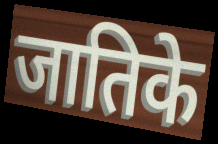
जातिके